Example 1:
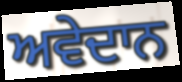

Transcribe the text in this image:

ਅਵੇਦਾਨ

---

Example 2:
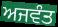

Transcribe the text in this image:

ਅਜਵੰਤ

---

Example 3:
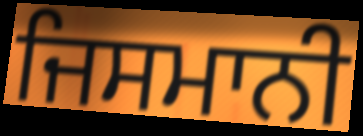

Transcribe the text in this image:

ਜਿਸਮਾਨੀ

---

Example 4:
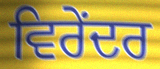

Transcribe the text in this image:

ਵਿਰੇਂਦਰ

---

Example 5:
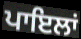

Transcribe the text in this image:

ਪਾਇਲਾਂ